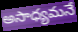
అసాధ్యమనే